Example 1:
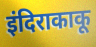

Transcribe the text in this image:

इंदिराकाकू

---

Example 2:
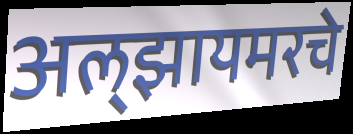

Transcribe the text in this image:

अल्झायमरचे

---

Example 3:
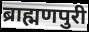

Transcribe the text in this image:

ब्राह्मणपुरी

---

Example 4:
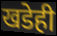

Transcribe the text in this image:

खडेही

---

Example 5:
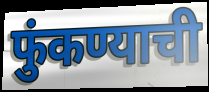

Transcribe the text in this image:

फुंकण्याची